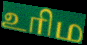
உரிம